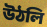
উঠলি